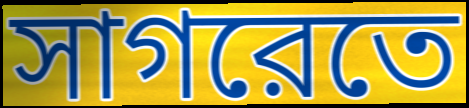
সাগরেতে